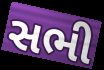
સભી